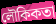
লৌকিকতা